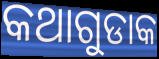
କଥାଗୁଡାକ